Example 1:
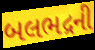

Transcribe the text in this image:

બલભદ્રની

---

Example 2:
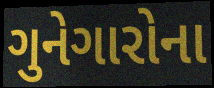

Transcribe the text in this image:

ગુનેગારોના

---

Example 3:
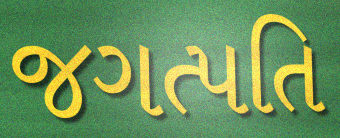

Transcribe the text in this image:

જગત્પતિ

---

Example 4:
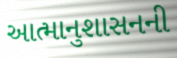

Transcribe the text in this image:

આત્માનુશાસનની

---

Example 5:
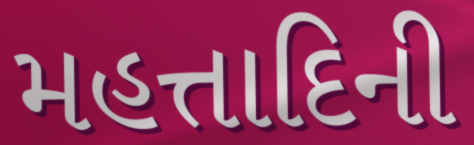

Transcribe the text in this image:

મહત્તાદિની